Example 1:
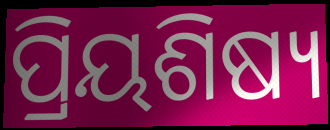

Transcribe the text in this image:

ପ୍ରିୟଶିଷ୍ୟ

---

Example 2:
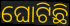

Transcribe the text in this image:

ଘୋଟିଛି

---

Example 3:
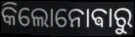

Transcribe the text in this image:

କିଲୋନୋଵାରୁ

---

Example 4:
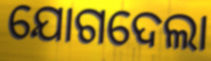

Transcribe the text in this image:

ଯୋଗଦେଲା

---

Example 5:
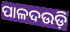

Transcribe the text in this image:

ପାଳଦଉଡ଼ି